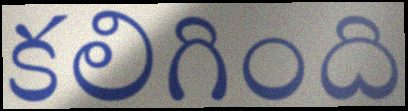
కలిగింది